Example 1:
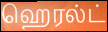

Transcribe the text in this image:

ஹெரல்ட்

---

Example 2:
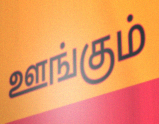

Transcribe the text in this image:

ஊங்கும்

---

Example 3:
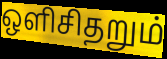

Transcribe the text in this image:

ஒளிசிதறும்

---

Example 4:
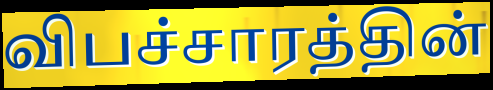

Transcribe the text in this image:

விபச்சாரத்தின்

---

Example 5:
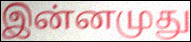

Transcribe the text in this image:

இன்னமுது